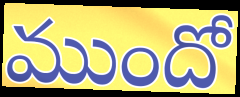
ముందో